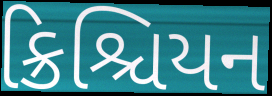
ક્રિશ્ચિયન